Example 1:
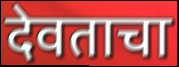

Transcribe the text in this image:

देवताचा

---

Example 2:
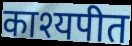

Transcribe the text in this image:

काश्यपीत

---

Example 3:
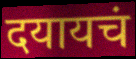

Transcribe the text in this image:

दयायचं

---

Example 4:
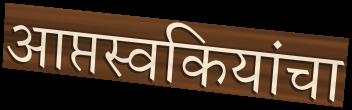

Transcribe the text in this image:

आप्तस्वकियांचा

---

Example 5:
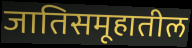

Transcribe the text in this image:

जातिसमूहातील